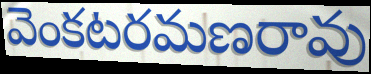
వెంకటరమణరావు